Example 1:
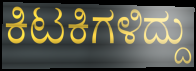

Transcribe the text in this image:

ಕಿಟಕಿಗಳಿದ್ದು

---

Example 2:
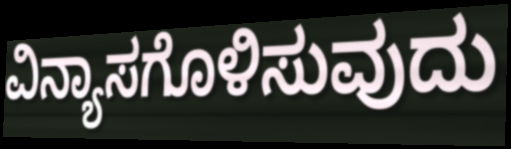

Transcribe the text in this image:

ವಿನ್ಯಾಸಗೊಳಿಸುವುದು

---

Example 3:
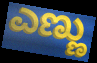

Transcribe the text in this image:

ಎಣ್ಣು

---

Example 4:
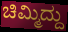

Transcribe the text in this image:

ಚಿಮ್ಮಿದ್ದು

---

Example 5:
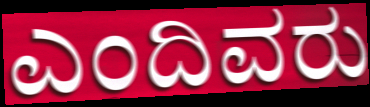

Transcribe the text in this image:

ಎಂದಿವರು